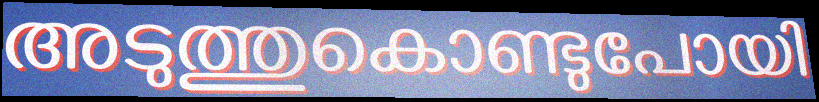
അടുത്തുകൊണ്ടുപോയി